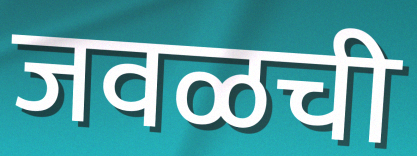
जवळची